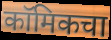
कॉमिकचा